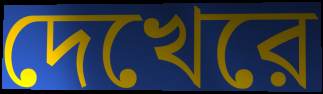
দেখেরে